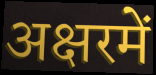
अक्षरमें